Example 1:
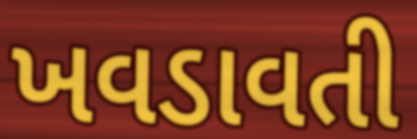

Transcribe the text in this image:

ખવડાવતી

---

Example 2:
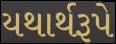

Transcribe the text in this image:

યથાર્થરૂપે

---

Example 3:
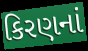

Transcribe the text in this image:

કિરણનાં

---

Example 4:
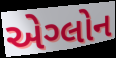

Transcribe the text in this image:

એગ્લોન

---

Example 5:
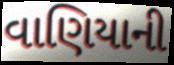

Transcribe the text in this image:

વાણિયાની